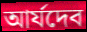
আর্যদেব